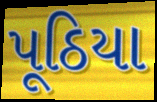
પૂઠિયા